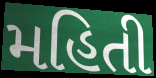
મહિતી